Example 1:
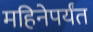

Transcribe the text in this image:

महिनेपर्यंत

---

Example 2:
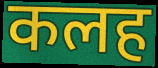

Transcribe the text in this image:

कलह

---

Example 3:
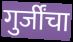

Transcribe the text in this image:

गुर्जींचा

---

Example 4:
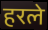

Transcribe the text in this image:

हरले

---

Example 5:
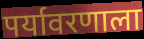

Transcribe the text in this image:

पर्यावरणाला